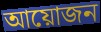
আয়োজন